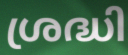
ശ്രദ്ധി